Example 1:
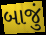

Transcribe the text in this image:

બાજું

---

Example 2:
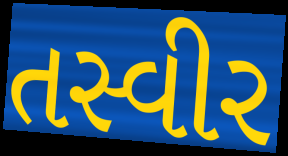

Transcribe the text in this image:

તસ્વીર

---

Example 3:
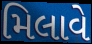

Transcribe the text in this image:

મિલાવે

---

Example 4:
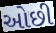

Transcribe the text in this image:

ઓછી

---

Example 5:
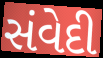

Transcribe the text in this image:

સંવેદી